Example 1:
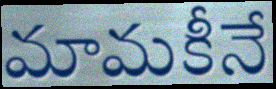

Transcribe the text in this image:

మామకీనే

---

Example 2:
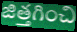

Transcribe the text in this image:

జిత్తగించి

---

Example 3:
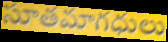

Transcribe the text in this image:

సూతమాగధులు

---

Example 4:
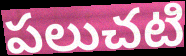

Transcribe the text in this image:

పలుచటి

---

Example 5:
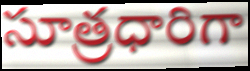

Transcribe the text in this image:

సూత్రధారిగా